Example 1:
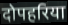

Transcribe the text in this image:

दोपहरिया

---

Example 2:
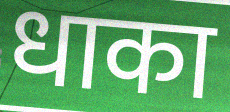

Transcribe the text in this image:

धाका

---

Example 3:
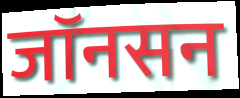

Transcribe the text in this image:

जॉनसन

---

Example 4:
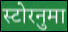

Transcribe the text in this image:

स्टोरनुमा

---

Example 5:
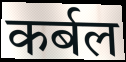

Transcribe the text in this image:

कर्बल